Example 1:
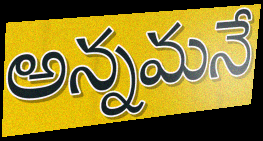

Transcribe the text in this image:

అన్నమనే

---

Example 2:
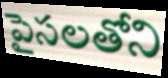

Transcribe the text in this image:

పైసలతోని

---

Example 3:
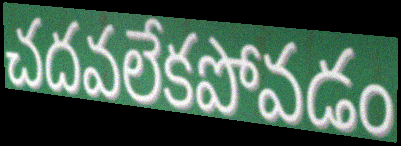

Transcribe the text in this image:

చదవలేకపోవడం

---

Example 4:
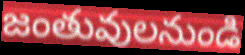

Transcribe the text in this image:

జంతువులనుండి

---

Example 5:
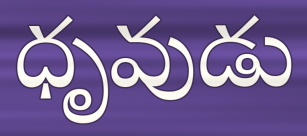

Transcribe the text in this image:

ధృవుడు